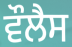
ਵੌਲੈਸ